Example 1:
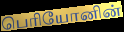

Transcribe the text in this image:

பெரியோனின்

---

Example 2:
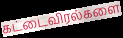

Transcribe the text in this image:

கட்டைவிரல்களை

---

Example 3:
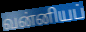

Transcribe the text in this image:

வன்னியப்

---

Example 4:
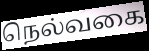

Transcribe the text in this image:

நெல்வகை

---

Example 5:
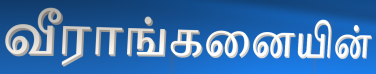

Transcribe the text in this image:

வீராங்கனையின்